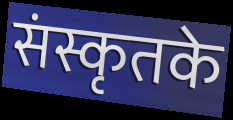
संस्कृतके